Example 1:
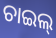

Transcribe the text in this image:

ଚାଇଲ୍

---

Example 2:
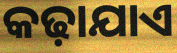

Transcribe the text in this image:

କଢ଼ାଯାଏ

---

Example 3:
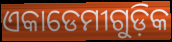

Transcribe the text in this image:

ଏକାଡେମୀଗୁଡ଼ିକ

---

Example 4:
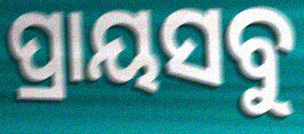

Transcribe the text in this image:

ପ୍ରାୟସବୁ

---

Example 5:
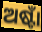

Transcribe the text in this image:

ଅଷ୍ଟାଁ